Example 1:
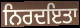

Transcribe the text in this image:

ਨਿਰਦਇਤਾ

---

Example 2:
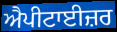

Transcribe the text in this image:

ਐਪੀਟਾਈਜ਼ਰ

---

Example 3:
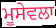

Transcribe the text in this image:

ਮੂਸੇਵਲਾ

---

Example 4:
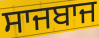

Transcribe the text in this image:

ਸਾਜਬਾਜ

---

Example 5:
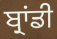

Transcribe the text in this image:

ਬ੍ਰਾਂਡੀ